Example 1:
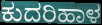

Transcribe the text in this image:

ಕುದರಿಹಾಳ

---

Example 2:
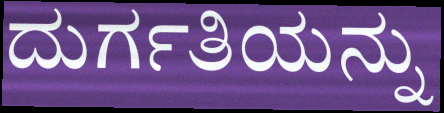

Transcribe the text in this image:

ದುರ್ಗತಿಯನ್ನು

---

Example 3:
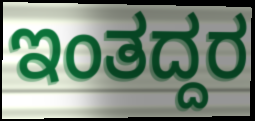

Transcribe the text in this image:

ಇಂತದ್ದರ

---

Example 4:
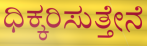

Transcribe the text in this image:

ಧಿಕ್ಕರಿಸುತ್ತೇನೆ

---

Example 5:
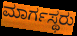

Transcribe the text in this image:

ಮಾರ್ಗಸ್ಥರು